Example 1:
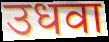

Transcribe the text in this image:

उधवा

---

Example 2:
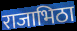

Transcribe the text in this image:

राजाभिठा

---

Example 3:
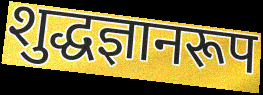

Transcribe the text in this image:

शुद्धज्ञानरूप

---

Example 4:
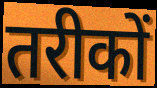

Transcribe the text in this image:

तरीकों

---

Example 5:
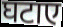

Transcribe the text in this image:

घटाए